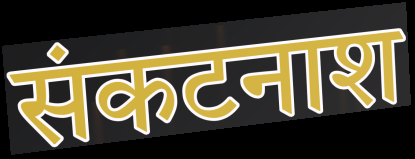
संकटनाश